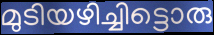
മുടിയഴിച്ചിട്ടൊരു